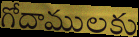
గోదాములకు